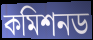
কমিশনড